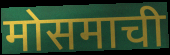
मोसमाची